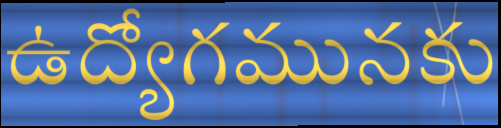
ఉద్యోగమునకు